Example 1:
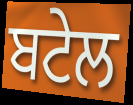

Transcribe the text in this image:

ਬਟੇਲ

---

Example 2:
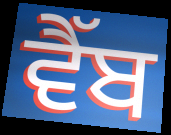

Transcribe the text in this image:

ਵੈੱਬ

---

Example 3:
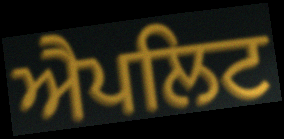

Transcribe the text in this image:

ਐਪਲਿਟ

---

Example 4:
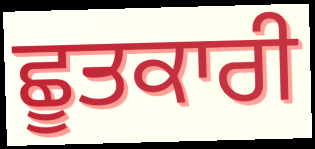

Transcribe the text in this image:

ਛੂਤਕਾਰੀ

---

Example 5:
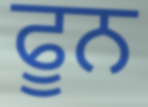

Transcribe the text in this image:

ਫੂਨ